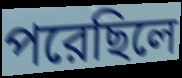
পরেছিলে